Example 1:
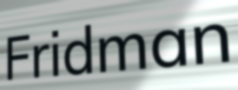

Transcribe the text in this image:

Fridman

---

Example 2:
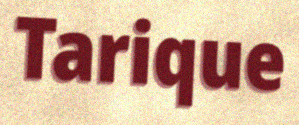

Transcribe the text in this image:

Tarique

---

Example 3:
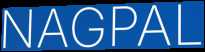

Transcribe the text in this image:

NAGPAL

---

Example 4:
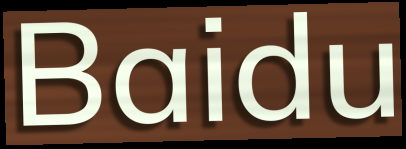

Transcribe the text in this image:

Baidu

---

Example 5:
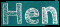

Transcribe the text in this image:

Hen